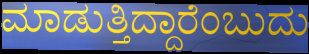
ಮಾಡುತ್ತಿದ್ದಾರೆಂಬುದು